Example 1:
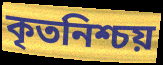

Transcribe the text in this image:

কৃতনিশ্চয়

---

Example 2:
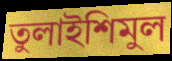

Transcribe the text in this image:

তুলাইশিমুল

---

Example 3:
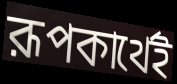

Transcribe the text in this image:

রূপকার্থেই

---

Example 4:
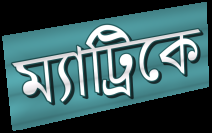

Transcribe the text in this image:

ম্যাট্রিকে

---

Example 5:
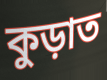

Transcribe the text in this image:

কুড়াত